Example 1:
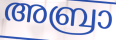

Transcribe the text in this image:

അബ്രാ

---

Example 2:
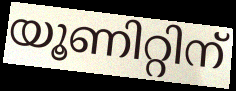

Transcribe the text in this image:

യൂണിറ്റിന്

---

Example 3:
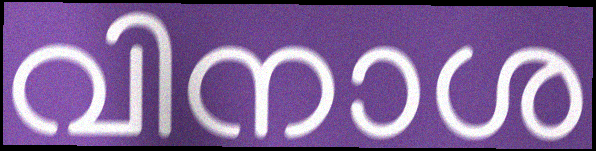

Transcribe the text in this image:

വിനാശ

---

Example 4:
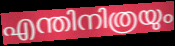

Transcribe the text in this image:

എന്തിനിത്രയും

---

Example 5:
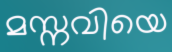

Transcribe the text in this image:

മസ്നവിയെ